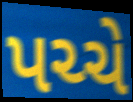
પચ્ચે